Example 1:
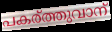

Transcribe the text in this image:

പകര്ത്തുവാന്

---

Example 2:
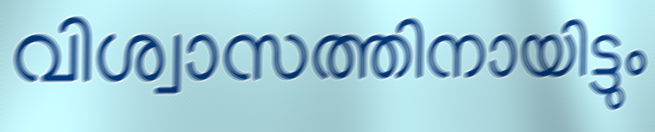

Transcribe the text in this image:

വിശ്വാസത്തിനായിട്ടും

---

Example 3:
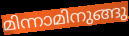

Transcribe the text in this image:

മിന്നാമിനുങ്ങു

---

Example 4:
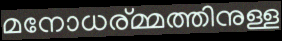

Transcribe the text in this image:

മനോധര്മ്മത്തിനുള്ള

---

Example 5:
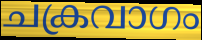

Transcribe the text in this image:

ചക്രവാഗം